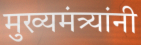
मुख्यमंत्र्यांनी